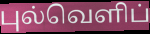
புல்வெளிப்